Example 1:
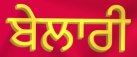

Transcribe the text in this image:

ਬੇਲਾਰੀ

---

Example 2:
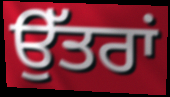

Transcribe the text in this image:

ਉੱਤਰਾਂ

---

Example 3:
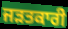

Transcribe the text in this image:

ਜੜਤਕਾਰੀ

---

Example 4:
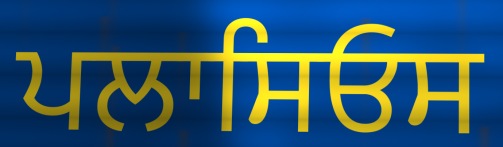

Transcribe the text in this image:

ਪਲਾਸਿਓਸ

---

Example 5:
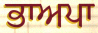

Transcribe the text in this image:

ਭਾਅਪਾ